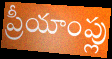
ప్రీయాంప్లు